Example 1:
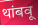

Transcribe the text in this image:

थांबवू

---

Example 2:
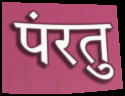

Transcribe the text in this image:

पंरतु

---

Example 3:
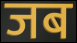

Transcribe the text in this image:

जब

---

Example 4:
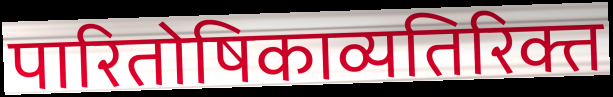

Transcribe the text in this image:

पारितोषिकाव्यतिरिक्त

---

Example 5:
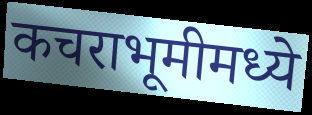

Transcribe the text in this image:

कचराभूमीमध्ये